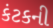
કંટકની